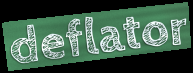
deflator